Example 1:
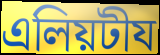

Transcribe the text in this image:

এলিয়টীয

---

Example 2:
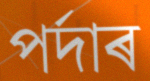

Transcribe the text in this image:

পৰ্দাৰ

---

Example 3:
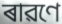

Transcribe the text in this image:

ৰাৱণে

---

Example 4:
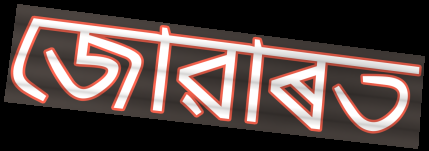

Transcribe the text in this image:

জোৱাৰত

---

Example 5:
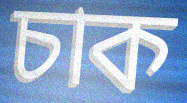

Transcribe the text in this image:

চাক